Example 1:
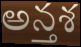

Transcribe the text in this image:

అన్తశ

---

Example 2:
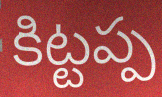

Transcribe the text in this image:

కిట్టప్ప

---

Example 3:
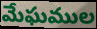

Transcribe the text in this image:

మేఘముల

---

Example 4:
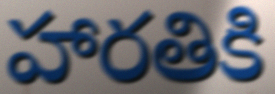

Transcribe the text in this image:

హారతికి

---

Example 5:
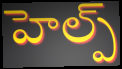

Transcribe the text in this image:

హెల్ప్